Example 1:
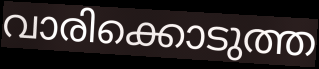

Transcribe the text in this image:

വാരിക്കൊടുത്ത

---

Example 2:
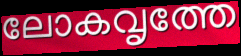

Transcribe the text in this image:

ലോകവൃത്തേ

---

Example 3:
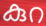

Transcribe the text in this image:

കുറ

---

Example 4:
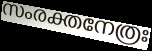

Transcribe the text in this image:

സംരക്തനേത്രഃ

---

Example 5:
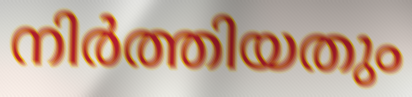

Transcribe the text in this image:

നിർത്തിയതും